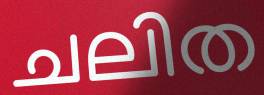
ചലിത